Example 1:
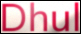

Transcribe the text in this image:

Dhul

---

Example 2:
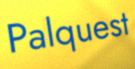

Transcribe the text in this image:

Palquest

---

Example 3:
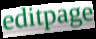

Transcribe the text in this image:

editpage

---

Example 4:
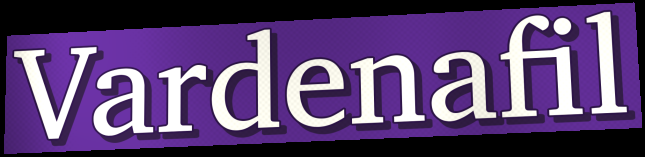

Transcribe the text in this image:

Vardenafil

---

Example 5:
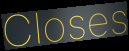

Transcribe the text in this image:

Closes